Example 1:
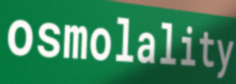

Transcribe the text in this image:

osmolality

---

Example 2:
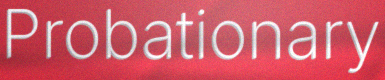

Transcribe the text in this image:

Probationary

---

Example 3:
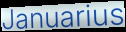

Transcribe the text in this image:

Januarius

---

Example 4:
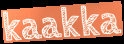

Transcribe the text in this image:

kaakka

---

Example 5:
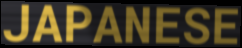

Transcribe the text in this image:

JAPANESE